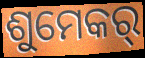
ଶୁମେକର୍